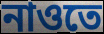
নাওতে